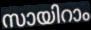
സായിറാം